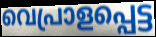
വെപ്രാളപ്പെട്ട